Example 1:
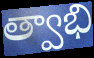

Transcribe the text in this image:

త్వాభి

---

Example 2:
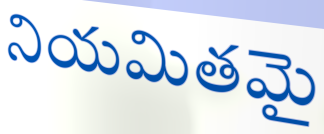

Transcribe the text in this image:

నియమితమై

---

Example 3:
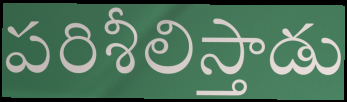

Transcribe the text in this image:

పరిశీలిస్తాడు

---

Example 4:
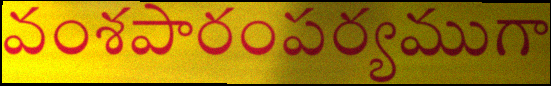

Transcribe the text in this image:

వంశపారంపర్యముగా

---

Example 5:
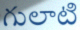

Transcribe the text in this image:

గులాటి